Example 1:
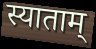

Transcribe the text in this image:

स्याताम्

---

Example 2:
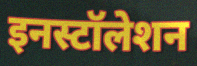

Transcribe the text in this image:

इनस्टॉलेशन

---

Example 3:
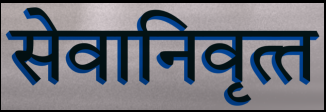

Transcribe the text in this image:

सेवानिवृत्‍त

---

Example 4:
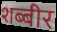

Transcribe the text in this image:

शब्बीर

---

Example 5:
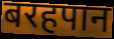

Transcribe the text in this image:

बरहपान